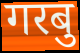
गरबु